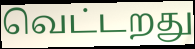
வெட்டறது